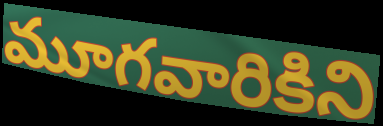
మూగవారికిని